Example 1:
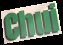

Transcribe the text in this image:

Chui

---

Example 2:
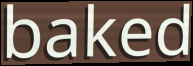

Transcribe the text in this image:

baked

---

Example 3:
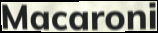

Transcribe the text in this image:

Macaroni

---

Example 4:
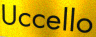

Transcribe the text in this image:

Uccello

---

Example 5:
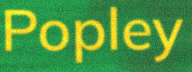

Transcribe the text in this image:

Popley